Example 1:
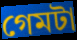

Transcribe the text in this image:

গেমটা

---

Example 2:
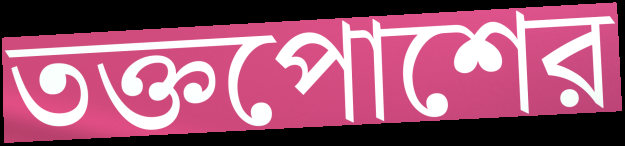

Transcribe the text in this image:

তক্তপোশের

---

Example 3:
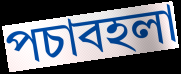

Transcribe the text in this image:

পচাবহলা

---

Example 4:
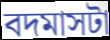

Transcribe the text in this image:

বদমাসটা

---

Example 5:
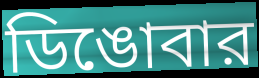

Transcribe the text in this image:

ডিঙোবার